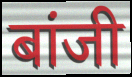
बांजी